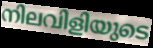
നിലവിളിയുടെ